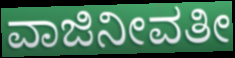
ವಾಜಿನೀವತೀ